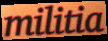
militia